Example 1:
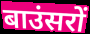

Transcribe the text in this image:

बाउंसरों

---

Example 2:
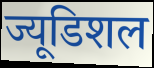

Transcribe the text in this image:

ज्यूडिशल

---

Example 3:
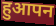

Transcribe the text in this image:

हुआपन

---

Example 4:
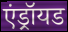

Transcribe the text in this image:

एंड्रॉयड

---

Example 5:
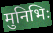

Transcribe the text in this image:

मुनिभिः